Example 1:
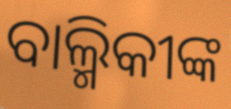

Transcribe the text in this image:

ବାଲ୍ମିକୀଙ୍କ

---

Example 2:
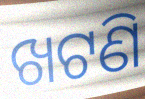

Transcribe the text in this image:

ଖଟଣି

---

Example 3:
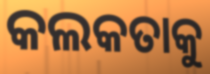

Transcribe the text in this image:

କଲକତାକୁ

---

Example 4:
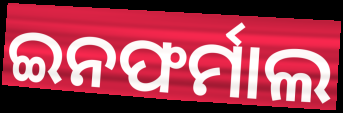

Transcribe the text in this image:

ଇନଫର୍ମାଲ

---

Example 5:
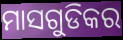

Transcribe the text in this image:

ମାସଗୁଡିକର